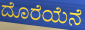
ದೊರೆಯೆನೆ